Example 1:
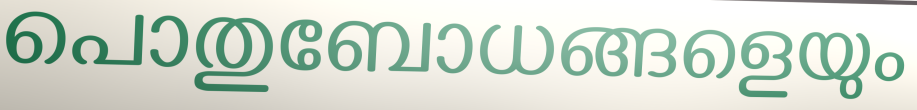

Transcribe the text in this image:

പൊതുബോധങ്ങളെയും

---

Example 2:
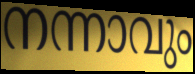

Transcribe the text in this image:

നന്നാവും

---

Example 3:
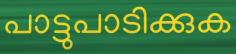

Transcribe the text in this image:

പാട്ടുപാടിക്കുക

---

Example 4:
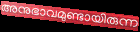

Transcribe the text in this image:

അനുഭാവമുണ്ടായിരുന്ന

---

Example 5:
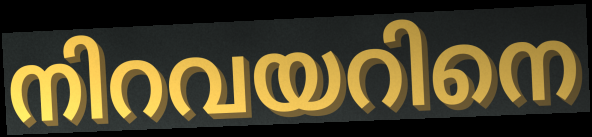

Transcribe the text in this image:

നിറവയറിനെ